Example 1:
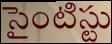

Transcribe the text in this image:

సైంటిస్టు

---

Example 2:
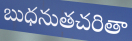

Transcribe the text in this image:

బుధనుతచరితా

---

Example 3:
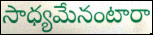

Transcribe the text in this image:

సాధ్యమేనంటారా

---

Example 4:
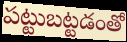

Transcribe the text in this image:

పట్టుబట్టడంతో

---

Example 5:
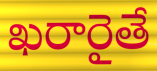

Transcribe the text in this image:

ఖరారైతే